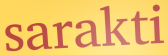
sarakti